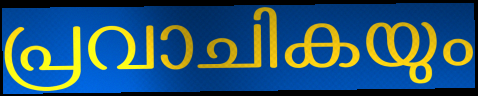
പ്രവാചികയും